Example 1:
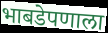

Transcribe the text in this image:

भाबडेपणाला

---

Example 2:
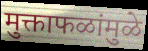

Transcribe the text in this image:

मुक्ताफळांमुळे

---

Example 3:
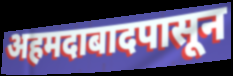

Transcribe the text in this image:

अहमदाबादपासून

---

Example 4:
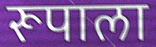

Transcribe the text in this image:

रूपाला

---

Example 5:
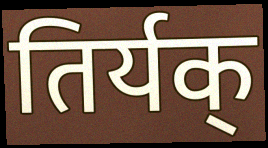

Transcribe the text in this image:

तिर्यक्